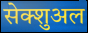
सेक्शुअल